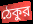
ঠেকুর